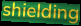
shielding